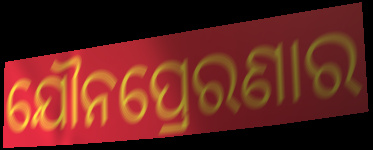
ଯୌନପ୍ରେରଣାର